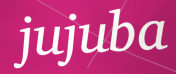
jujuba